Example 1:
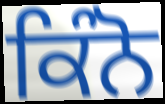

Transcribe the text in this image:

ਕਿੰਨੋ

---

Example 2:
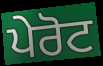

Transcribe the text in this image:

ਪੇਰੋਟ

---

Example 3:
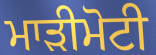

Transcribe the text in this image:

ਮਾੜੀਮੋਟੀ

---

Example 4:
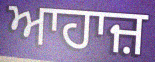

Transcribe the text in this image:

ਆਹਾਜ਼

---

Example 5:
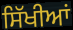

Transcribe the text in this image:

ਸਿੱਖੀਆਂ